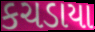
કચડાયા